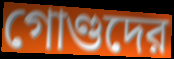
গোণ্ডদের